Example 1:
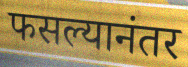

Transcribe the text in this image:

फसल्यानंतर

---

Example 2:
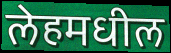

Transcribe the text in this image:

लेहमधील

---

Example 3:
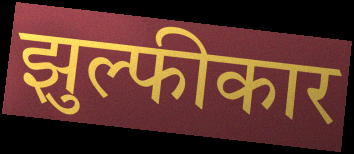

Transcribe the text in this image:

झुल्फीकार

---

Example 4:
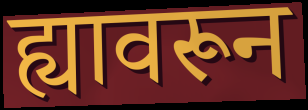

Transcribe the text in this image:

ह्यावरून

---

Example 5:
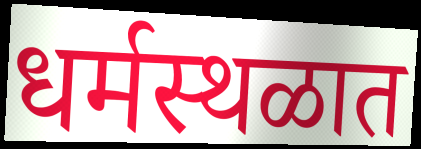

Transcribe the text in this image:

धर्मस्थळात